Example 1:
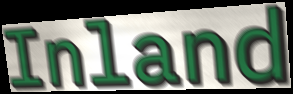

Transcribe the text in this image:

Inland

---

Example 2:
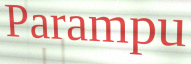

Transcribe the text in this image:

Parampu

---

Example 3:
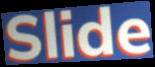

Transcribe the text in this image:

Slide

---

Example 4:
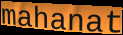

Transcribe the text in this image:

mahanat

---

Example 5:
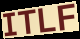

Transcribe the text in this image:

ITLF